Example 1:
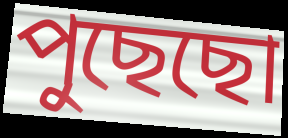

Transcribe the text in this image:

পুছেছো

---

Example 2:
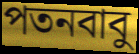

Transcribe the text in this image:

পতনবাবু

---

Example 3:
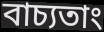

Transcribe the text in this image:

বাচ্যতাং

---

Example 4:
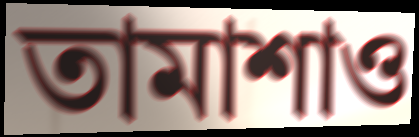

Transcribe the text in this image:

তামাশাও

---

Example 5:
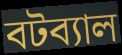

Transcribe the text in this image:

বটব্যাল